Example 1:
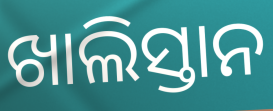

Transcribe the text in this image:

ଖାଲିସ୍ତାନ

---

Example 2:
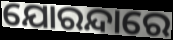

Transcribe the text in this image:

ଯୋରନ୍ଦାରେ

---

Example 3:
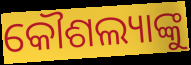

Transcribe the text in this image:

କୌଶଲ୍ୟାଙ୍କୁ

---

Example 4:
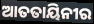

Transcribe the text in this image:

ଆତତାୟିନୀର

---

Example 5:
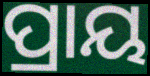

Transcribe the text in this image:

ପ୍ରାୟ